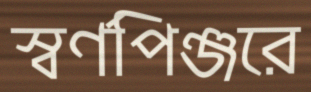
স্বর্ণপিঞ্জরে